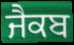
ਜੈਕਬ